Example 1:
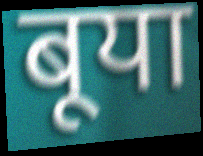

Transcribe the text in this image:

बूया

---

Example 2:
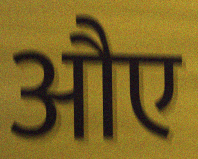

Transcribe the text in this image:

औए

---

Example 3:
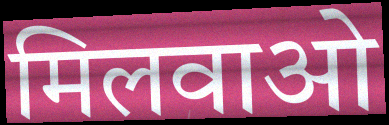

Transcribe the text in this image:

मिलवाओ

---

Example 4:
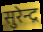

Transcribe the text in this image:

सुरेन्द्र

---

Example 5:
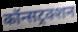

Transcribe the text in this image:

कॉन्सट्रक्शन